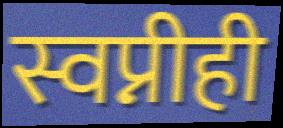
स्वप्नीही